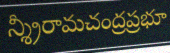
న్శ్రీరామచంద్రప్రభూ